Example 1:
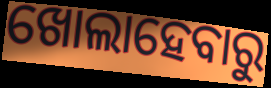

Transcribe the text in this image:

ଖୋଲାହେବାରୁ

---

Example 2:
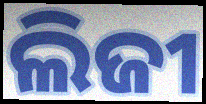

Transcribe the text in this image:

ଲିଜୀ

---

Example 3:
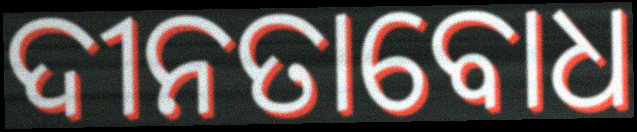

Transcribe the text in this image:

ଦୀନତାବୋଧ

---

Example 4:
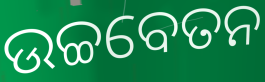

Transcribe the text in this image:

ଉଚ୍ଚବେତନ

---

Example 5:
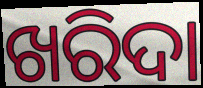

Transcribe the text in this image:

ଖରିଦା